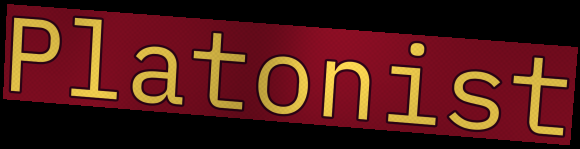
Platonist